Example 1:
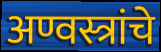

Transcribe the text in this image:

अण्वस्त्रांचे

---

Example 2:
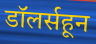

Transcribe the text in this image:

डॉलर्सहून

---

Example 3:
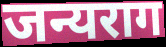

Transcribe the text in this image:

जन्यराग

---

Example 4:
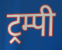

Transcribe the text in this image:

ट्रम्पी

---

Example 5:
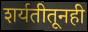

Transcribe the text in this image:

शर्यतीतूनही